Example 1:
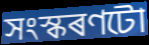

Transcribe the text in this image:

সংস্কৰণটো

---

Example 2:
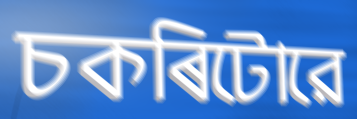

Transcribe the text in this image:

চকৰিটোৱে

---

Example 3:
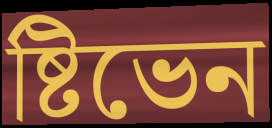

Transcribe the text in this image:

ষ্টিভেন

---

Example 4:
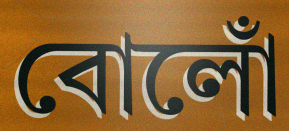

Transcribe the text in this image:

বোলোঁ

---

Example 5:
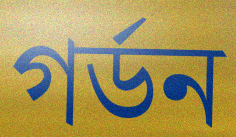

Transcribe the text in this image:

গৰ্ডন